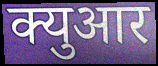
क्युआर